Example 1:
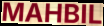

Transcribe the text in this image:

MAHBIL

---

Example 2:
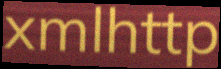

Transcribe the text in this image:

xmlhttp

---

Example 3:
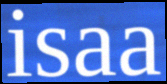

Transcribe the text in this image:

isaa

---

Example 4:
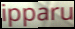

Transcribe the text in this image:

ipparu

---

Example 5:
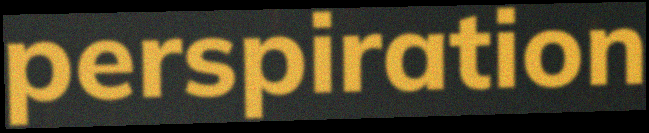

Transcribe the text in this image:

perspiration